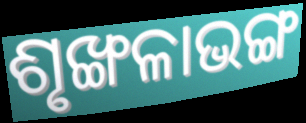
ଶୃଙ୍ଖଳାଭଙ୍ଗ